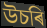
উচৰি